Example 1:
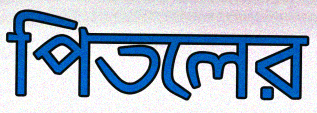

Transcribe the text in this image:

পিতলের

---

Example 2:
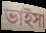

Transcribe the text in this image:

ভাইসা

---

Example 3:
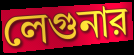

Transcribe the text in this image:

লেগুনার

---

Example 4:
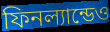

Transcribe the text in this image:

ফিনল্যান্ডেও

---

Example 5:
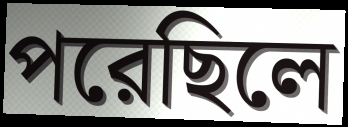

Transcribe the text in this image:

পরেছিলে